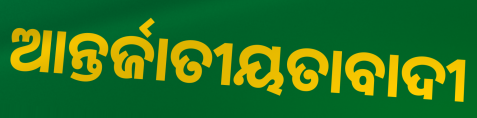
ଆନ୍ତର୍ଜାତୀୟତାବାଦୀ